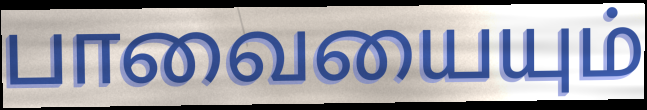
பாவையையும்